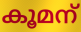
കൂമന്